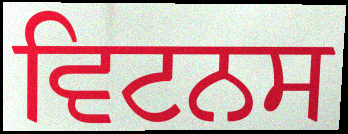
ਵਿਟਨਸ